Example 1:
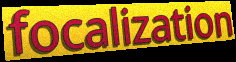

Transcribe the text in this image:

focalization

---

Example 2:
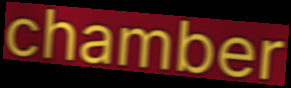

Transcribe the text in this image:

chamber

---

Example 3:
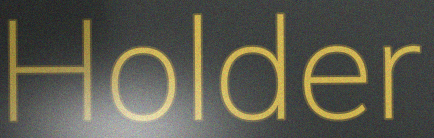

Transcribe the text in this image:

Holder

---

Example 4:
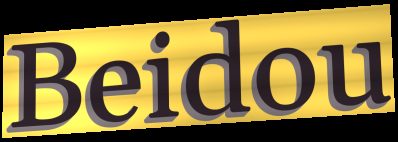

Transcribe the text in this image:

Beidou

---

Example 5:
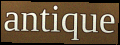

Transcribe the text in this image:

antique